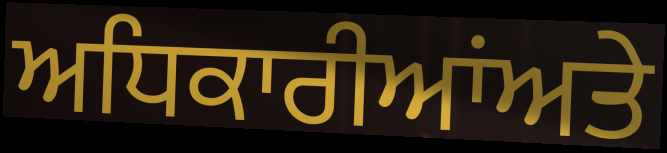
ਅਧਿਕਾਰੀਆਂਅਤੇ